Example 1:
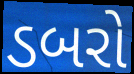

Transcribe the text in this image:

ડબરો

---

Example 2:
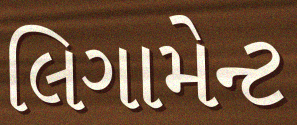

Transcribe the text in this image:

લિગામેન્ટ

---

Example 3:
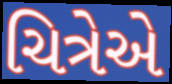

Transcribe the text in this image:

ચિત્રેએ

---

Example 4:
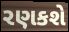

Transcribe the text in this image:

રણકશે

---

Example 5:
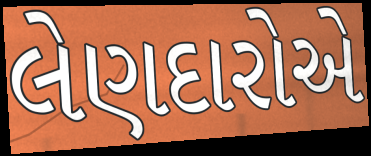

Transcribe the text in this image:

લેણદારોએ